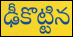
ఢీకొట్టిన